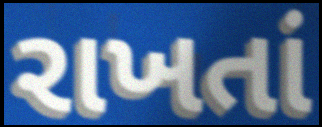
રાખતાં